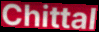
Chittal